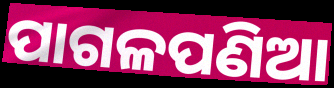
ପାଗଳପଣିଆ